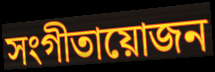
সংগীতায়োজন